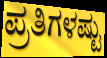
ಪ್ರತಿಗಳಷ್ಟು